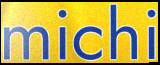
michi